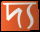
দ্য